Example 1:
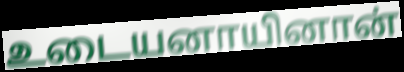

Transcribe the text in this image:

உடையனாயினான்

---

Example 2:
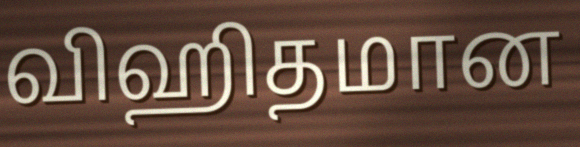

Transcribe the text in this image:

விஹிதமான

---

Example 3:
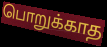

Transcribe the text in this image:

பொறுக்காத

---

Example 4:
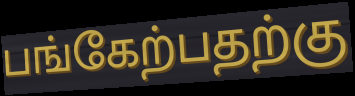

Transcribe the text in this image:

பங்கேற்பதற்கு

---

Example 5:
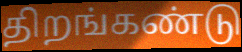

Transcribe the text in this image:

திறங்கண்டு